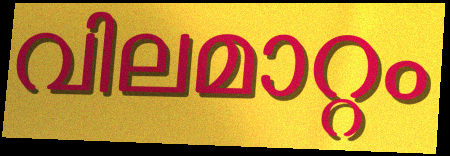
വിലമാറ്റം